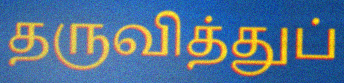
தருவித்துப்